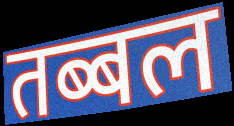
तब्बल